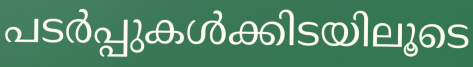
പടർപ്പുകൾക്കിടയിലൂടെ